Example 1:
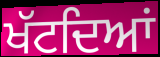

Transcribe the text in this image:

ਖੱਟਦਿਆਂ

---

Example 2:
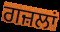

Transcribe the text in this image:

ਗਜ਼ਲਾਂ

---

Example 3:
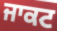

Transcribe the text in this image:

ਜਾਕਟ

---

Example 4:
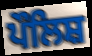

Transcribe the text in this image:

ਪੌਲਿਸ਼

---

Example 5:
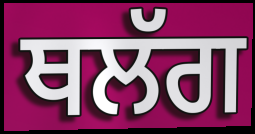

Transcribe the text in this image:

ਥਲੱਗ